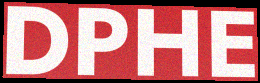
DPHE